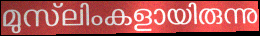
മുസ്‌ലിംകളായിരുന്നു